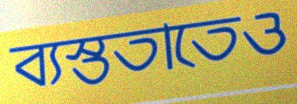
ব্যস্ততাতেও